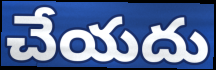
చేయదు